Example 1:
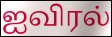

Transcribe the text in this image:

ஐவிரல்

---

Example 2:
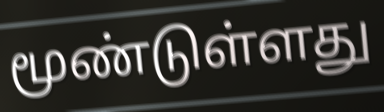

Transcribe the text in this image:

மூண்டுள்ளது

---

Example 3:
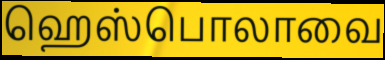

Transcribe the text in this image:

ஹெஸ்பொலாவை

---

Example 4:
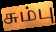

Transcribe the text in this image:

சும்பு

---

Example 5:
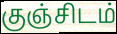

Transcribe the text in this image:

குஞ்சிடம்